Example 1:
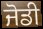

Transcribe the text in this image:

ਜੋਡੀ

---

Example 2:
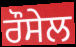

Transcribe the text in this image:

ਰੌਸੇਲ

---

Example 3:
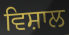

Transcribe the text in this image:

ਵਿਸ਼ਾਲ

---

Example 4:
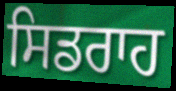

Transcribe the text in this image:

ਸਿਡਰਾਹ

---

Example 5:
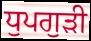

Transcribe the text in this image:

ਧੁਪਗੁੜੀ